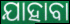
ଯାହାବା